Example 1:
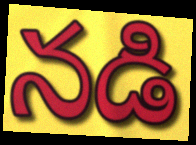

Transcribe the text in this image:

నడి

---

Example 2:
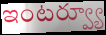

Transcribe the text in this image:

ఇంటర్వ్యూ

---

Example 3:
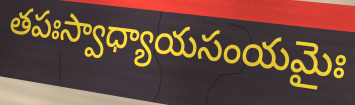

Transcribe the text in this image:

తపఃస్వాధ్యాయసంయమైః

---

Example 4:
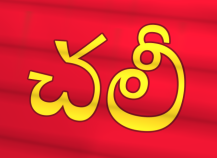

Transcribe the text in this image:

చలీ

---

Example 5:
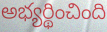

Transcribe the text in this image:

అభ్యర్థించింది